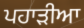
ਪਹਾੜੀਆ